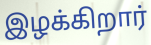
இழக்கிறார்